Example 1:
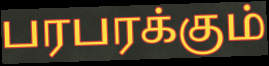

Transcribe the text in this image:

பரபரக்கும்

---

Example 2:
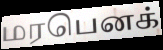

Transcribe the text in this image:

மரபெனக்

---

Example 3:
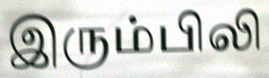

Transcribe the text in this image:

இரும்பிலி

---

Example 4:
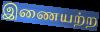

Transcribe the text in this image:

இணையற்ற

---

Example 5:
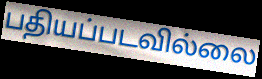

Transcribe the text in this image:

பதியப்படவில்லை